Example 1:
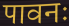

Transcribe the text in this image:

पावनः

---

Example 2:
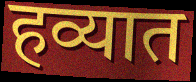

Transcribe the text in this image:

हव्‍यात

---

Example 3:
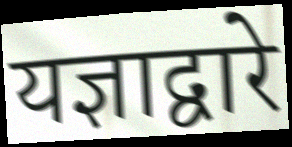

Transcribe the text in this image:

यज्ञाद्वारे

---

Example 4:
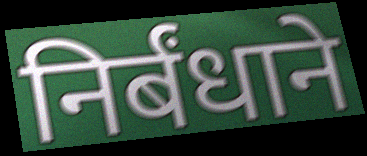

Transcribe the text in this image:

निर्बंधाने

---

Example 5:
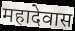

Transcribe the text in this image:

महादेवास